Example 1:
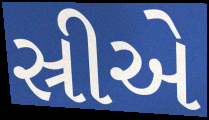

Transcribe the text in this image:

સ્રીએ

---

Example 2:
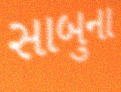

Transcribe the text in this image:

સાબુના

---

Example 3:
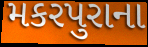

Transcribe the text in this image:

મકરપુરાના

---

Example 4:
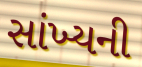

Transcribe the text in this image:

સાંખ્યની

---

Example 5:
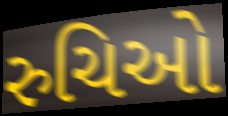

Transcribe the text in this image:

રુચિઓ